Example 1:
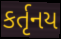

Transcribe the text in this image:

કર્તૃનય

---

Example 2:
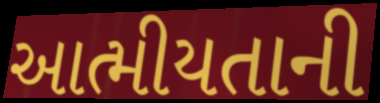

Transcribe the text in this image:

આત્મીયતાની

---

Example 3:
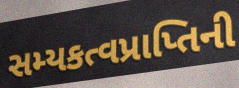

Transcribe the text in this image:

સમ્યકત્વપ્રાપ્તિની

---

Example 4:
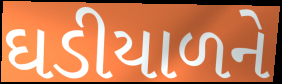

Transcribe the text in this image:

ઘડીયાળને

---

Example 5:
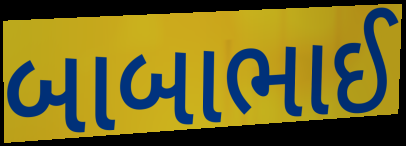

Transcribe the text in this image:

બાબાભાઈ